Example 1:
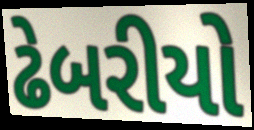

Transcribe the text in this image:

ઢેબરીયો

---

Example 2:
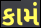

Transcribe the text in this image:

કામં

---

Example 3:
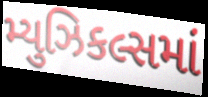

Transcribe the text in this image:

મ્યુઝિકલ્સમાં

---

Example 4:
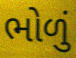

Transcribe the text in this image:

ભોળું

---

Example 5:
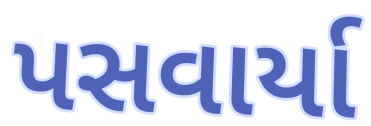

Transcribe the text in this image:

પસવાર્યા